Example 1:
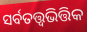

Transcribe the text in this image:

ସର୍ବତତ୍ତ୍ୱଭିତ୍ତିକ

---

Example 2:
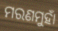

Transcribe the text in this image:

ମରଣମୁହାଁ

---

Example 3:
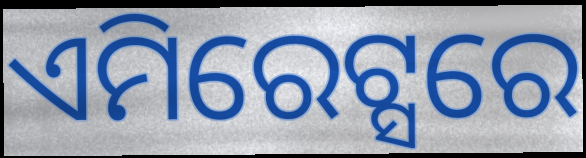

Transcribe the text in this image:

ଏମିରେଟ୍ସରେ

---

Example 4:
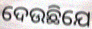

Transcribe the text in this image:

ଦେଉଛିଯେ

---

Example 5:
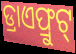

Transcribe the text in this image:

ଡ୍ରାଏଫ୍ରୁଟ୍